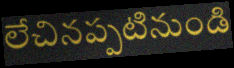
లేచినప్పటినుండి